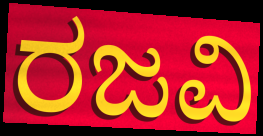
ರಜವಿ